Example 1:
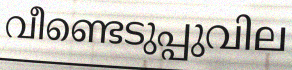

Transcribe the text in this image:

വീണ്ടെടുപ്പുവില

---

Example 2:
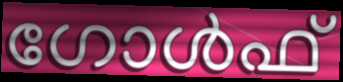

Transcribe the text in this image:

ഗോൾഫ്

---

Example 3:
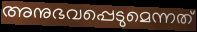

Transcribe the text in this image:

അനുഭവപ്പെടുമെന്നത്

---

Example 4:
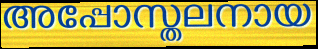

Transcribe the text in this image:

അപ്പോസ്തലനായ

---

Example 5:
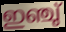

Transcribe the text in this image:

ഇഞ്ചു്